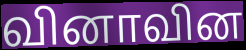
வினாவின